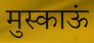
मुस्काऊं